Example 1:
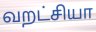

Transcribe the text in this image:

வறட்சியா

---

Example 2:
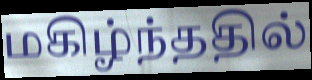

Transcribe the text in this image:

மகிழ்ந்ததில்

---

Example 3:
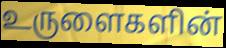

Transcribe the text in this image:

உருளைகளின்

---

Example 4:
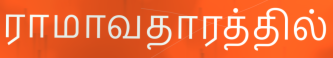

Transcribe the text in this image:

ராமாவதாரத்தில்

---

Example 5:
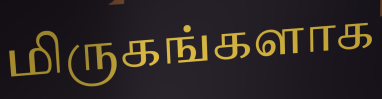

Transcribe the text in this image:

மிருகங்களாக